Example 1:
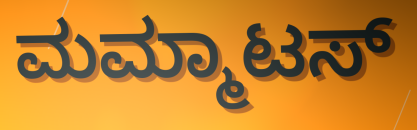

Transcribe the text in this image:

ಮಮ್ಮಾಟಸ್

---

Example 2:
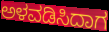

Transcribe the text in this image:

ಅಳವಡಿಸಿದಾಗ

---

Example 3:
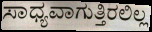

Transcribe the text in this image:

ಸಾಧ್ಯವಾಗುತ್ತಿರಲಿಲ್ಲ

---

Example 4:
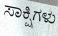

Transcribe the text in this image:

ಸಾಕ್ಷಿಗಳು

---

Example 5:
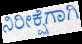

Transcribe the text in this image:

ನಿರೀಕ್ಷೆಗಾಗಿ